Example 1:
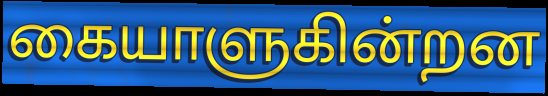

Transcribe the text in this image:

கையாளுகின்றன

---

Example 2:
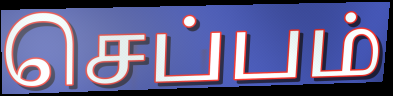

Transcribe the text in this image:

செப்பம்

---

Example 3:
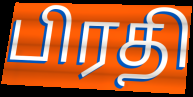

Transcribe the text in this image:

பிரதி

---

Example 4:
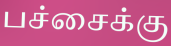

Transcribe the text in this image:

பச்சைக்கு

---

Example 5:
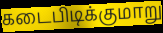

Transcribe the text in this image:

கடைபிடிக்குமாறு